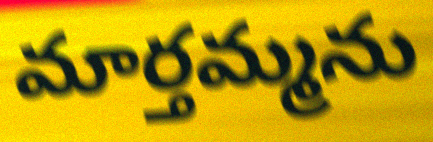
మార్తమ్మను